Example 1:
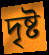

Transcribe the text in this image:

দৃষ্ট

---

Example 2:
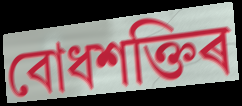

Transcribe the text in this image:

বোধশক্তিৰ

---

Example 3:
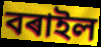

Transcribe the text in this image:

বৰাইল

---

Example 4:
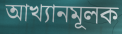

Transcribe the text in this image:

আখ্যানমূলক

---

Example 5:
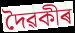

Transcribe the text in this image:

দৈৱকীৰ